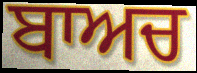
ਬਾਅਚ